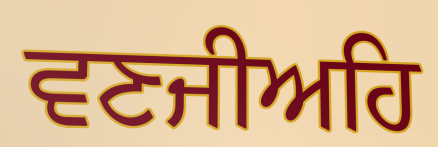
ਵਣਜੀਅਹਿ